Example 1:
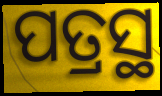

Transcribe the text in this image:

ପତ୍ରସ୍ଥ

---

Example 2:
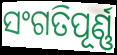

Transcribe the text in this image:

ସଂଗତିପୂର୍ଣ୍ଣ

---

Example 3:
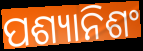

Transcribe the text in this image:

ପଶ୍ୟାନିଶଂ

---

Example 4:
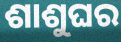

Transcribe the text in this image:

ଶାଶୁଘର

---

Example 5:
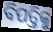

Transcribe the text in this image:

ବିପତ୍ତିକୁ